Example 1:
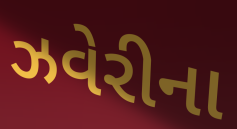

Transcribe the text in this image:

ઝવેરીના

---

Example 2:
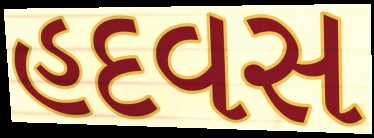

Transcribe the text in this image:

હદવસ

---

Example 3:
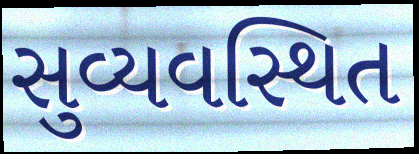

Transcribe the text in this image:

સુવ્યવસ્થિત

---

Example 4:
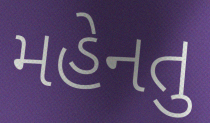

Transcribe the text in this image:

મહેનતુ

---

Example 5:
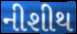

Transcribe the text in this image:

નીશીથ